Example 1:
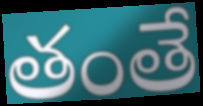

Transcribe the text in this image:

తంతే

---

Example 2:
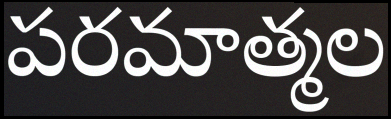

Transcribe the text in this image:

పరమాత్మల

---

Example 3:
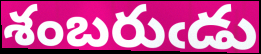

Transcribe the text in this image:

శంబరుఁడు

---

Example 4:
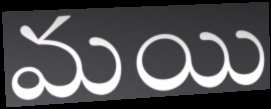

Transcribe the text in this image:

మయి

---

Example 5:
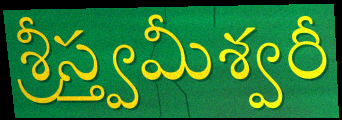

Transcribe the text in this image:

శ్రీస్త్వమీశ్వరీ